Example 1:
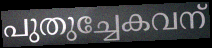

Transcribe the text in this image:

പുതുച്ചേകവന്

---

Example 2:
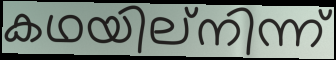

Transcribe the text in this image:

കഥയില്നിന്ന്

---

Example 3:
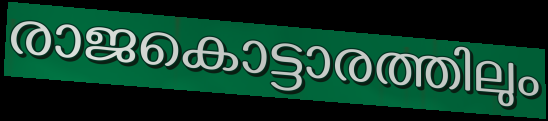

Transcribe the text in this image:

രാജകൊട്ടാരത്തിലും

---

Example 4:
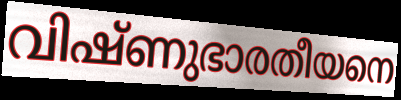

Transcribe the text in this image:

വിഷ്ണുഭാരതീയനെ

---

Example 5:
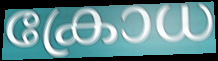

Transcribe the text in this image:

ക്രോധ